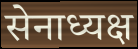
सेनाध्यक्ष